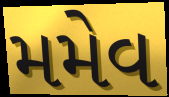
મમેવ